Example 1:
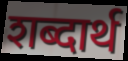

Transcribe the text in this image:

शब्दार्थ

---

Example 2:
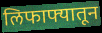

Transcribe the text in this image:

लिफाफ्यातून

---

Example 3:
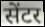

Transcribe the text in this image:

सेंटर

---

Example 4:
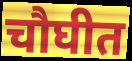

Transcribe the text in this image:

चौघीत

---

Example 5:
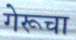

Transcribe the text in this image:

गेरूचा